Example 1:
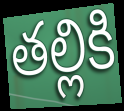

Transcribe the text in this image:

తల్లికి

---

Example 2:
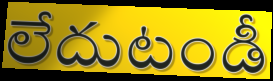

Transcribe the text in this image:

లేదుటండీ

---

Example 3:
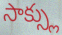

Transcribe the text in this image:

సాక్స్లు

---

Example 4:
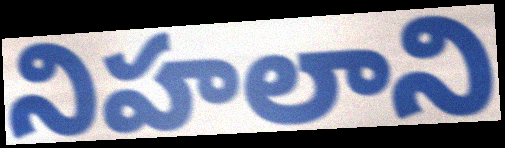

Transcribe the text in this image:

నిహలాని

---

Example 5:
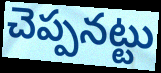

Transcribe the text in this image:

చెప్పనట్టు